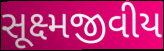
સૂક્ષ્મજીવીય